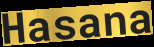
Hasana